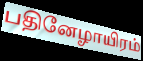
பதினேழாயிரம்